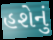
હશેનું